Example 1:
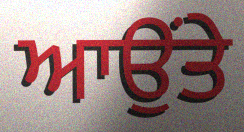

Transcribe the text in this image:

ਆਉਂਤੇ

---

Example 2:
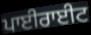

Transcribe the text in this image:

ਪਾਈਰਾਈਟ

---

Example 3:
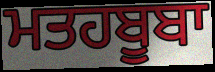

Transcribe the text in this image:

ਮਤਹਬੂਬਾ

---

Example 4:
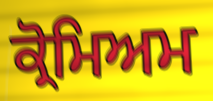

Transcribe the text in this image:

ਕ੍ਰੋਮਿਅਮ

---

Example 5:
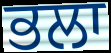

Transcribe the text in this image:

ਭਲਾ